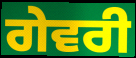
ਗੇਵਰੀ